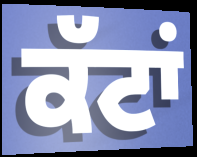
ਕੱਟਾਂ